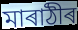
মাৰাঠীৰ